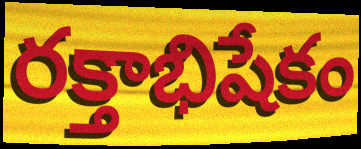
రక్తాభిషేకం